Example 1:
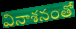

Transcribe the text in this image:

వినాశనంతో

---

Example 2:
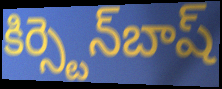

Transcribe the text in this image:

కిర్స్టెన్‌బాష్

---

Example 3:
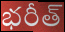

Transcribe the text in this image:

భరీత్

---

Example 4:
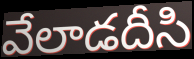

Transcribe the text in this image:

వేలాడదీసి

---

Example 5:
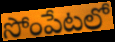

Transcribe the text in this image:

సోంపేటలో